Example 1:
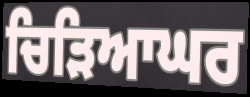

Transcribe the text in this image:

ਚਿੜਿਆਘਰ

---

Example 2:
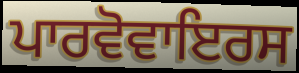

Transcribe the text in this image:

ਪਾਰਵੋਵਾਇਰਸ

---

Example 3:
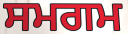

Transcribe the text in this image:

ਸਮਗਮ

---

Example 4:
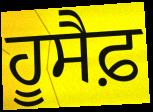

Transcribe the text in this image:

ਹੂਸੈਫ਼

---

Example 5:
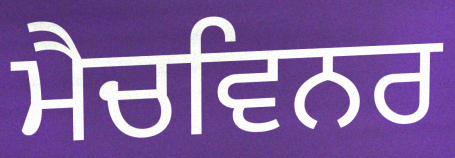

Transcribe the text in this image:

ਮੈਚਵਿਨਰ